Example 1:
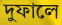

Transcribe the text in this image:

দুফালে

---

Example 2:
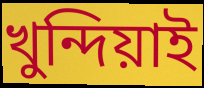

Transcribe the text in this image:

খুন্দিয়াই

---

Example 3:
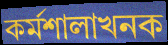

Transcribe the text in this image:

কৰ্মশালাখনক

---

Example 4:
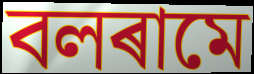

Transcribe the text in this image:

বলৰামে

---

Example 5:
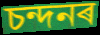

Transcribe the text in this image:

চন্দনৰ